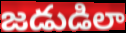
జడుడిలా